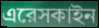
এরেসকাইন